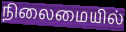
நிலைமையில்